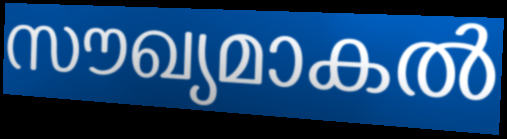
സൗഖ്യമാകൽ